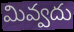
మివ్వదు